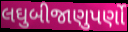
લઘુબીજાણુપર્ણો